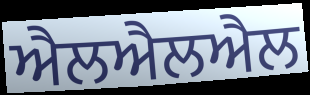
ਐਲਐਲਐਲ